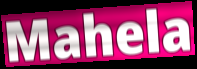
Mahela